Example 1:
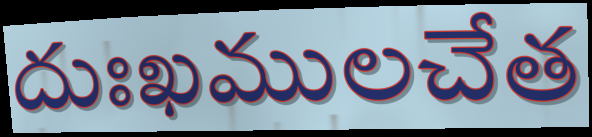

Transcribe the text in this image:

దుఃఖములచేత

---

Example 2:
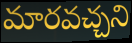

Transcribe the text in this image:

మారవచ్చని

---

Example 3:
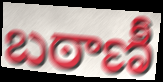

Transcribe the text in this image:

బఠాణీ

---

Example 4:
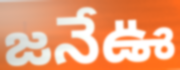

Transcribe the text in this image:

జనేఊ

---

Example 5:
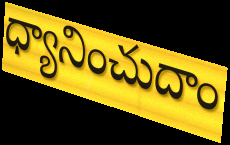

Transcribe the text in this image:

ధ్యానించుదాం